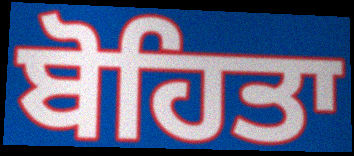
ਬੋਹਿਤਾ